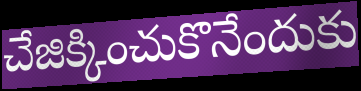
చేజిక్కించుకొనేందుకు